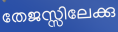
തേജസ്സിലേക്കു